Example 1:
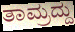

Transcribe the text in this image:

ತಾಮ್ರದ್ದು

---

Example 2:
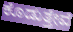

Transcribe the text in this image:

ಕೊಡುತ್ತೇವೆ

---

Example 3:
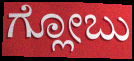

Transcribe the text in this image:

ಗ್ಲೋಬು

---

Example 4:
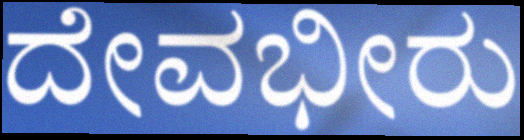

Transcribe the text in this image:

ದೇವಭೀರು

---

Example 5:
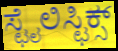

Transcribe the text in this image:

ಸ್ಟೈಲಿಸ್ಟಿಕ್ಸ್